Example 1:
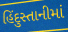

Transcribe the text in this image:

હિંદુસ્તાનીમાં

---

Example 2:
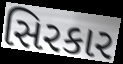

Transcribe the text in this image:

સિરકાર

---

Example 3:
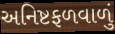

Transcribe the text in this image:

અનિષ્ટફળવાળું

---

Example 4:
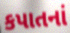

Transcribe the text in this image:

કપાતનાં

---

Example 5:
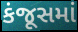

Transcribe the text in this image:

કંજૂસમાં